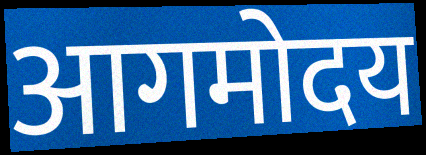
आगमोदय